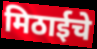
मिठाईचे